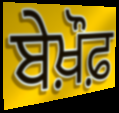
ਬੇਖ਼ੌਫ਼